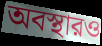
অবস্থারও